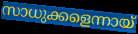
സാധുക്കളെന്നായ്